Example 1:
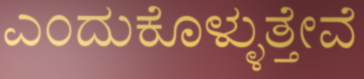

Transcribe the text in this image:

ಎಂದುಕೊಳ್ಳುತ್ತೇವೆ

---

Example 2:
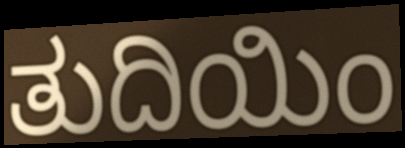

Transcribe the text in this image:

ತುದಿಯಿಂ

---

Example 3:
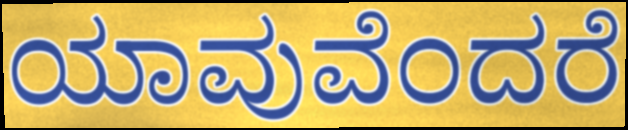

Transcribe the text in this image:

ಯಾವುವೆಂದರೆ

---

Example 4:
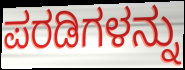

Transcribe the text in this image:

ಪರಡಿಗಳನ್ನು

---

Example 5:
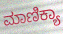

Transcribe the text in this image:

ಮಾಣಿಕ್ಯಾ